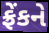
ફ્રેંકને